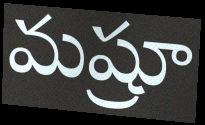
మష్రూ